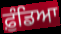
ਫ਼ੁੰਡਿਆ